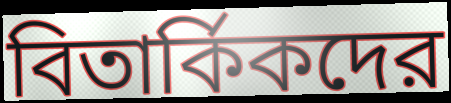
বিতার্কিকদের